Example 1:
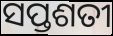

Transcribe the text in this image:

ସପ୍ତଶତୀ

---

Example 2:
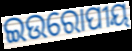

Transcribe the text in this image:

ଇଉରୋପୀୟ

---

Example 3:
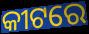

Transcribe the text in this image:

କୀଟରେ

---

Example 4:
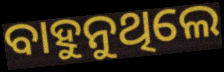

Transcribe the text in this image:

ବାହୁନୁଥିଲେ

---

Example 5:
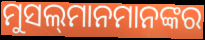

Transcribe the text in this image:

ମୁସଲ୍‌ମାନମାନଙ୍କର